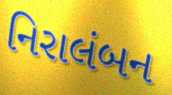
નિરાલંબન